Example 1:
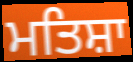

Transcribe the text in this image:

ਮਤਿਸ਼ਾ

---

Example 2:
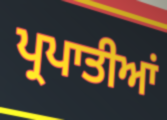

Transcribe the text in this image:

ਪ੍ਰਪਾਤੀਆਂ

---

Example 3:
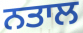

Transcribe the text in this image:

ਨਤਾਲ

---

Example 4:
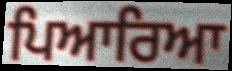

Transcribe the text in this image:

ਪਿਆਰਿਆ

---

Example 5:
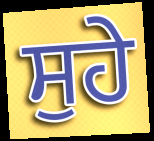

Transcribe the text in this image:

ਸੁਹੇ